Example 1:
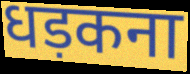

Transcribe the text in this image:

धड़कना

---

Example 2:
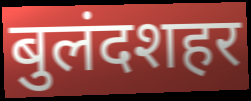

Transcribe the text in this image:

बुलंदशहर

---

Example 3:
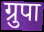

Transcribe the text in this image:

ग्रुपा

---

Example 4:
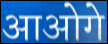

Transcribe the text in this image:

आओगे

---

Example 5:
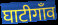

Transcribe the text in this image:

घाटीगाँव